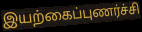
இயற்கைப்புணர்ச்சி